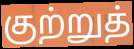
குற்றுத்